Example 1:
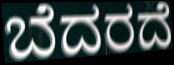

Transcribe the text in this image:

ಬೆದರದೆ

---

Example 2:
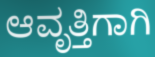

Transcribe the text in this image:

ಆವೃತ್ತಿಗಾಗಿ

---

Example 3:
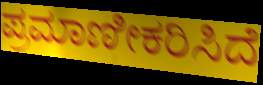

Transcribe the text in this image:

ಪ್ರಮಾಣೀಕರಿಸಿದೆ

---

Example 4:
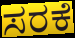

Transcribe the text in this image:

ಸರಕೆ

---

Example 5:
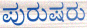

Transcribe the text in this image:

ಪುರುಷರು